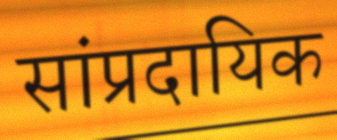
सांप्रदायिक